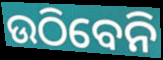
ଉଠିବେନି